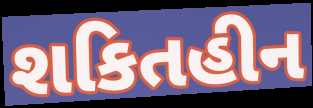
શકિતહીન